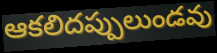
ఆకలిదప్పులుండవు